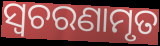
ସ୍ଵଚରଣାମୃତ